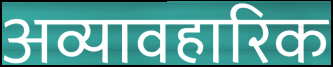
अव्यावहारिक